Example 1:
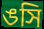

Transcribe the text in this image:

ঙসি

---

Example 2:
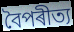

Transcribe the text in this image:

বৈপৰীত্য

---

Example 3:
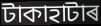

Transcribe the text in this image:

টাকাহাটাৰ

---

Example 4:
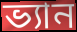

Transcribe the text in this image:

ভ্যান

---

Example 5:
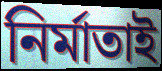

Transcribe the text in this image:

নিৰ্মাতাই